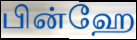
பின்ஹே